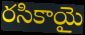
రసికాయై